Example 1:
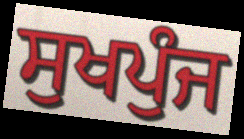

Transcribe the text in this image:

ਸੁਖਪੁੰਜ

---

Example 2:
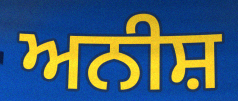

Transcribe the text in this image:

ਅਨੀਸ਼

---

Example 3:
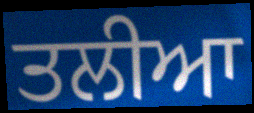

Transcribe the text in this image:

ਤਲੀਆ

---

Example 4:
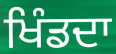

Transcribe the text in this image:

ਖਿੰਡਦਾ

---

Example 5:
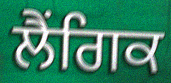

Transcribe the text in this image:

ਲੈਂਗਿਕ